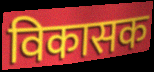
विकासक